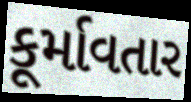
કૂર્માવતાર